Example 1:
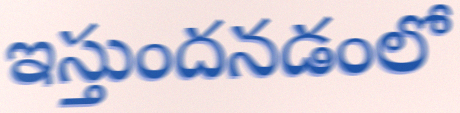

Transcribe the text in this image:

ఇస్తుందనడంలో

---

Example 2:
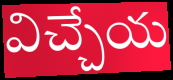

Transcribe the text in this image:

విచ్చేయ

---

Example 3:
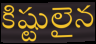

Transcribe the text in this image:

కిష్టులైన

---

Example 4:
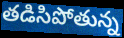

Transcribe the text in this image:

తడిసిపోతున్న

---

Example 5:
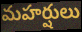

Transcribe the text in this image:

మహర్షులు